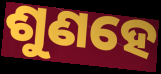
ଶୁଣହେ